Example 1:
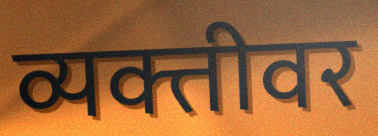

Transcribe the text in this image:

व्यक्तीवर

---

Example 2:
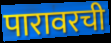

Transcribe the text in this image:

पारावरची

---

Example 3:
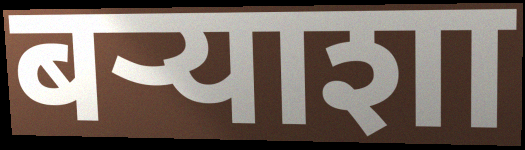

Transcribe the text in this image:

बऱ्याशा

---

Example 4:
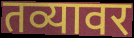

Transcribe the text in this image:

तव्यावर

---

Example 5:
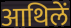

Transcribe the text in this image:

आथिलें